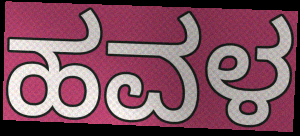
ಹವಳ